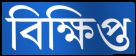
বিক্ষিপ্ত